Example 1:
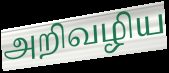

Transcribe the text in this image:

அறிவழிய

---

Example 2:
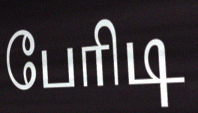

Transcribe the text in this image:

பேரிடி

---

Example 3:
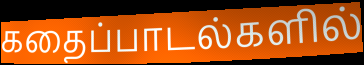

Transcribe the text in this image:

கதைப்பாடல்களில்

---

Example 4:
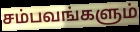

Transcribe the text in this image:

சம்பவங்களும்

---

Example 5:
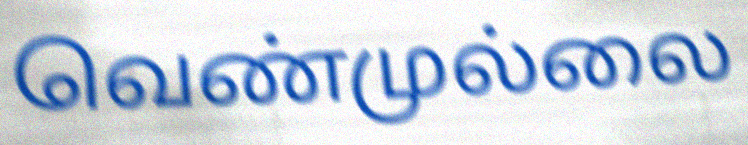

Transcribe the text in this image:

வெண்முல்லை